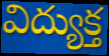
విద్యుక్త